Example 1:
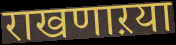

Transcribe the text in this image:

राखणाऱया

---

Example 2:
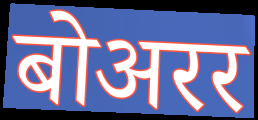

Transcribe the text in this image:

बोअरर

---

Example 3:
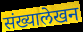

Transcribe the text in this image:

संख्यालेखन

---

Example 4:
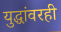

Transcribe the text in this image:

युद्धांवरही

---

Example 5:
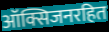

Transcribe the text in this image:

ऑक्सिजनरहित